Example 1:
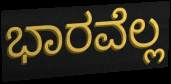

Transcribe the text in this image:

ಭಾರವೆಲ್ಲ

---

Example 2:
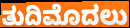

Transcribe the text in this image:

ತುದಿಮೊದಲು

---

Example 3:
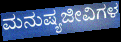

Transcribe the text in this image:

ಮನುಷ್ಯಜೀವಿಗಳ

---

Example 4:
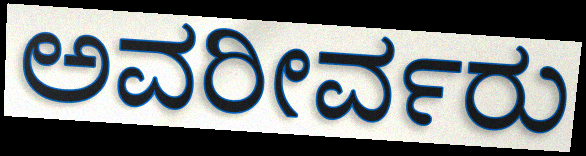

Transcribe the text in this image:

ಅವರೀರ್ವರು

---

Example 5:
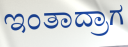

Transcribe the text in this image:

ಇಂತಾದ್ರಾಗ